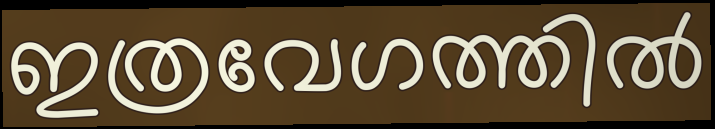
ഇത്രവേഗത്തിൽ